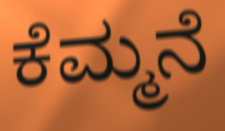
ಕೆಮ್ಮನೆ